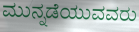
ಮುನ್ನಡೆಯುವವರು